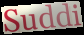
Suddi